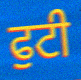
ਫੁਟੀ